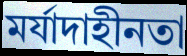
মর্যাদাহীনতা